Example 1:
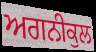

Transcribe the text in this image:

ਅਗਨੀਕੁਲ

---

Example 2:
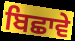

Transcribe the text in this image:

ਬਿਛਾਵੇ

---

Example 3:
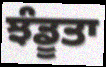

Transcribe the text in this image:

ਝੰਡੂਤਾ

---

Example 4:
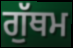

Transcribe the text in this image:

ਗੁੱਥਮ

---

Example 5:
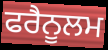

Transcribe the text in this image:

ਫਰੈਨੂਲਮ